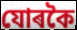
যোৰকৈ